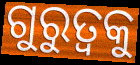
ଗୁରୁତ୍ବକୁ